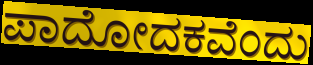
ಪಾದೋದಕವೆಂದು